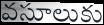
వసూలుకు